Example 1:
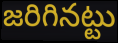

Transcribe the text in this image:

జరిగినట్టు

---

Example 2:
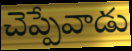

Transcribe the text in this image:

చెప్పేవాడు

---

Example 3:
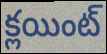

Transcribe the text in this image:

క్లయింట్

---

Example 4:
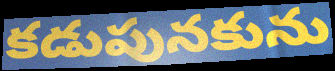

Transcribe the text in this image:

కడుపునకును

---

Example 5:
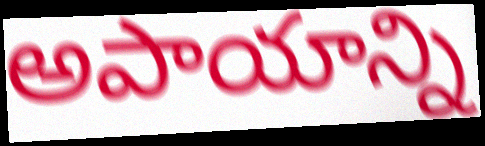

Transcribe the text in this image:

అపాయాన్ని